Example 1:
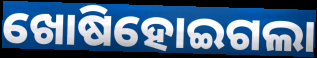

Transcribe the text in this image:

ଖୋଷିହୋଇଗଲା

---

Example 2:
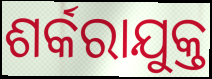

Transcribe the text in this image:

ଶର୍କରାଯୁକ୍ତ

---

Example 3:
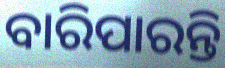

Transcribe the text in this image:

ବାରିପାରନ୍ତି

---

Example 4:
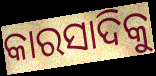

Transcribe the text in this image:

କାରସାଦିକୁ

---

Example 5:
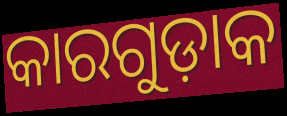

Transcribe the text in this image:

କାରଗୁଡ଼ାକ